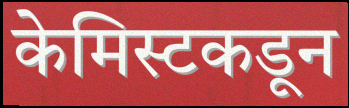
केमिस्टकडून